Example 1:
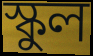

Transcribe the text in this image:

স্কুল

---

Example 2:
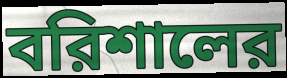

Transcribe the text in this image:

বরিশালের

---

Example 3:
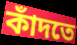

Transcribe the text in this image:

কাঁদতে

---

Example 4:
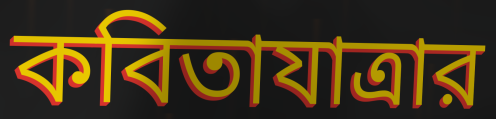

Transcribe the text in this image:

কবিতাযাত্রার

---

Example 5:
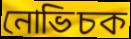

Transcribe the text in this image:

নোভিচক